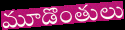
మూడొంతులు